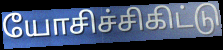
யோசிச்சிகிட்டு